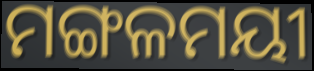
ମଙ୍ଗଳମୟୀ